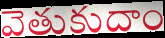
వెతుకుదాం